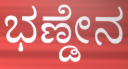
ಭಣ್ಡೇನ